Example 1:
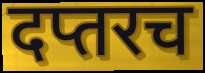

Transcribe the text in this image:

दप्तरच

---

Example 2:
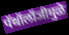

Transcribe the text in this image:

पॅथॉलॉजीमुळे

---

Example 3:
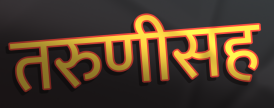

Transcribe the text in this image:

तरुणीसह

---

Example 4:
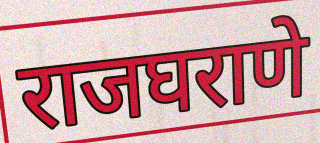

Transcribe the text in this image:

राजघराणे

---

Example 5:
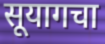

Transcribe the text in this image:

सूयागचा